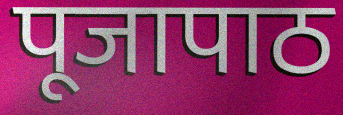
पूजापाठ